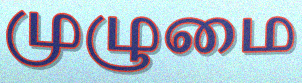
முழுமை